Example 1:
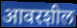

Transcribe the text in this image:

आवरशील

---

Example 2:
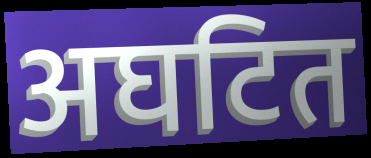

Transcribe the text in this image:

अघटित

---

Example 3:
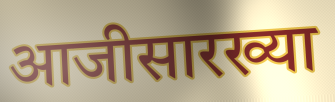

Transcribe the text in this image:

आजीसारख्या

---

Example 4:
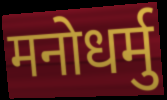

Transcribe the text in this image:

मनोधर्मु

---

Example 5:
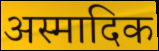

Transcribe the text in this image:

अस्मादिक